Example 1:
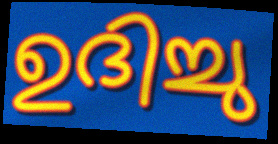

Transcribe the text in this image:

ഉദിച്ചു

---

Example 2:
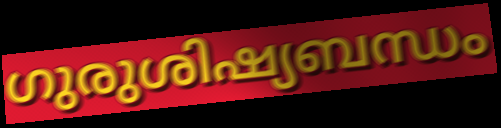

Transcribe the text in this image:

ഗുരുശിഷ്യബന്ധം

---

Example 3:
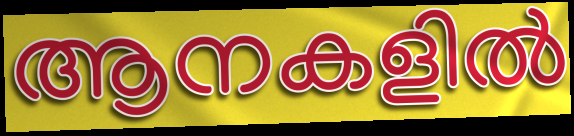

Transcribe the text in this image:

ആനകളിൽ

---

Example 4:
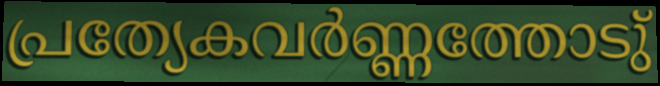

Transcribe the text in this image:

പ്രത്യേകവർണ്ണത്തോടു്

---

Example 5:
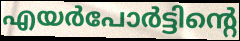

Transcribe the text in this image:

എയർപോർട്ടിന്റെ